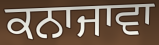
ਕਨਾਜਾਵਾ